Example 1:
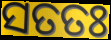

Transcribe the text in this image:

ସତତଃ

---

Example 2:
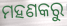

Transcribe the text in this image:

ମହଣକରୁ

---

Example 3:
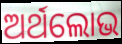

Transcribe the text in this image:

ଅର୍ଥଲୋଭ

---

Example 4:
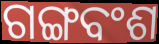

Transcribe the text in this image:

ଗଙ୍ଗବଂଶ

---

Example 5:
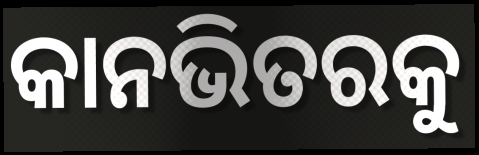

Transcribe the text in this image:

କାନଭିତରକୁ